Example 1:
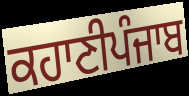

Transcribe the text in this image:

ਕਹਾਣੀਪੰਜਾਬ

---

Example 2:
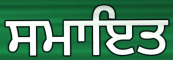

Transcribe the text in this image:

ਸਮਾਇਤ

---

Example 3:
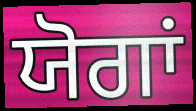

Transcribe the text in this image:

ਯੋਗਾਂ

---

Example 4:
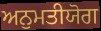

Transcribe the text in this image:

ਅਨੁਮਤੀਯੋਗ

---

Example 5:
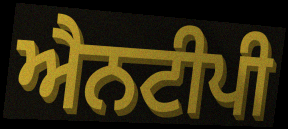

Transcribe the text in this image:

ਐਨਟੀਪੀ